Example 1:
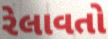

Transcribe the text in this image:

રેલાવતો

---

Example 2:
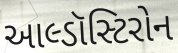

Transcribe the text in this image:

આલ્ડૉસ્ટિરોન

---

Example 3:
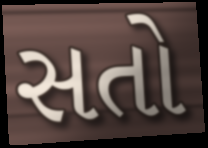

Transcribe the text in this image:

સતો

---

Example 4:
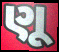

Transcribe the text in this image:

ણૂ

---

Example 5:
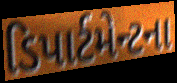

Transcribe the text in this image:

ડિપાર્ટમેન્ટના